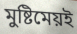
মুষ্টিমেয়ই